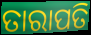
ତାରାପତି